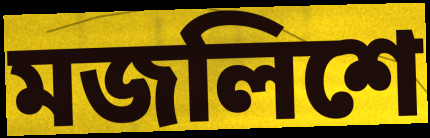
মজলিশে